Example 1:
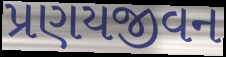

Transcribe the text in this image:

પ્રણયજીવન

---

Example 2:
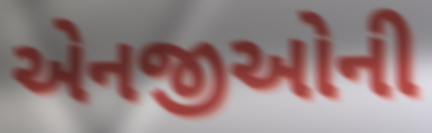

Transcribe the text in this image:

એનજીઓની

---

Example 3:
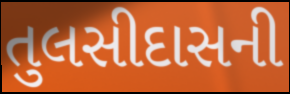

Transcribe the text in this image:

તુલસીદાસની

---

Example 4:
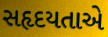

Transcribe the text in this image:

સહૃદયતાએ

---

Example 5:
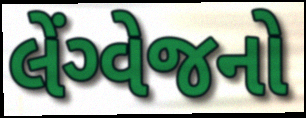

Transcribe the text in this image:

લેંગ્વેજનો